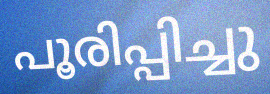
പൂരിപ്പിച്ചു